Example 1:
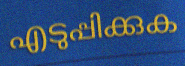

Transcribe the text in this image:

എടുപ്പിക്കുക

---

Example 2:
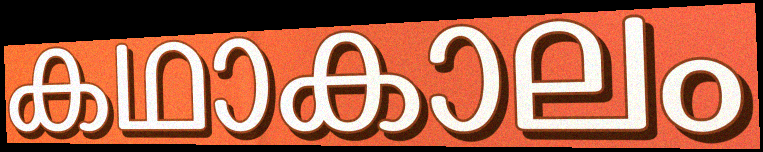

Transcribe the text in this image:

കഥാകാലം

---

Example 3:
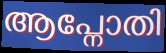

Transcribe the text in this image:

ആപ്നോതി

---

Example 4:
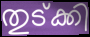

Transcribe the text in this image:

തുട്ക്കി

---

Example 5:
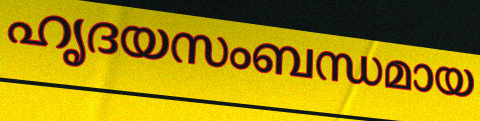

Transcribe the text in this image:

ഹൃദയസംബന്ധമായ